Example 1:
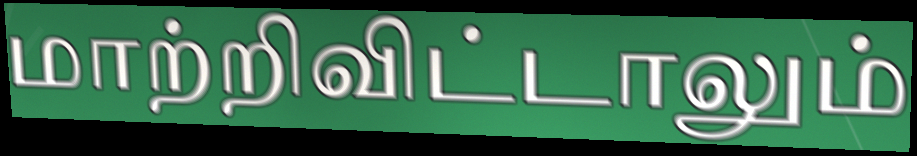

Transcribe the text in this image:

மாற்றிவிட்டாலும்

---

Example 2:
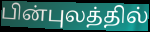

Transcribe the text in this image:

பின்புலத்தில்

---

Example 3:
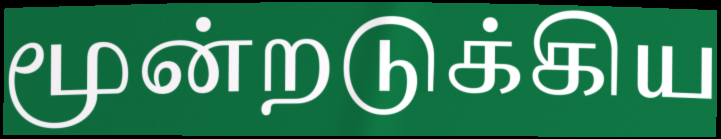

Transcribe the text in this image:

மூன்றடுக்கிய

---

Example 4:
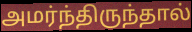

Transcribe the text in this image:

அமர்ந்திருந்தால்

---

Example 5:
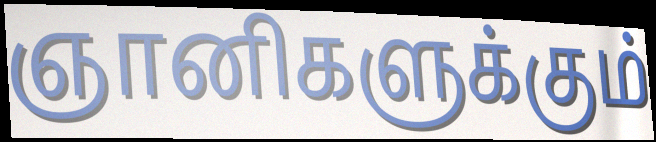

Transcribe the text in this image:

ஞானிகளுக்கும்